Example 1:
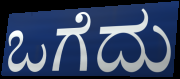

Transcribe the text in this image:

ಒಗೆದು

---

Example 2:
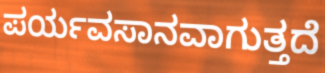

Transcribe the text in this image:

ಪರ್ಯವಸಾನವಾಗುತ್ತದೆ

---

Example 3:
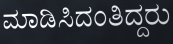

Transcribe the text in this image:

ಮಾಡಿಸಿದಂತಿದ್ದರು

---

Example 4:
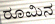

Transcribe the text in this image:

ರೂಮಿನ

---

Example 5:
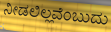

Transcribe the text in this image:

ನೀಡಲಿಲ್ಲವೆಂಬುದು